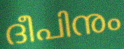
ദീപിനും